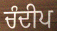
ਚੰਦੀਪ